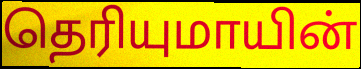
தெரியுமாயின்